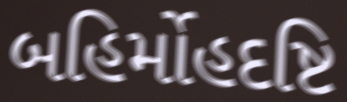
બહિર્મોહદષ્ટિ